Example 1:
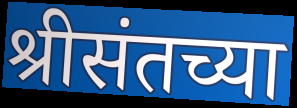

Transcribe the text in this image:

श्रीसंतच्या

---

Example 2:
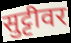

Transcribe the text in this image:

सुट्टीवर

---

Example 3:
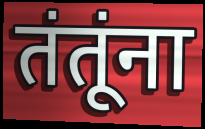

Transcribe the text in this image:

तंतूंना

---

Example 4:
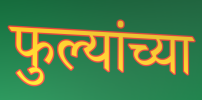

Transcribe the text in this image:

फुल्यांच्या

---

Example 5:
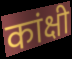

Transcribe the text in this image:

कांक्षी